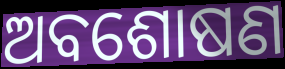
ଅବଶୋଷଣ